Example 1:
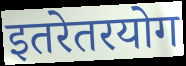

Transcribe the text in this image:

इतरेतरयोग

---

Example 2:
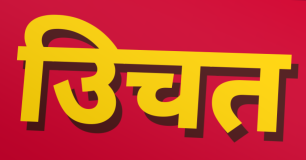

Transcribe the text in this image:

उिचत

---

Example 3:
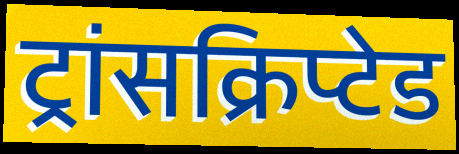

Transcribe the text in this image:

ट्रांसक्रिप्टेड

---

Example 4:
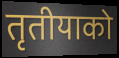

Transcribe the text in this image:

तृतीयाको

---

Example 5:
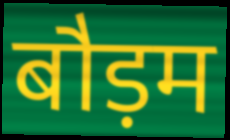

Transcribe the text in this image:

बौड़म